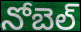
నోబెల్